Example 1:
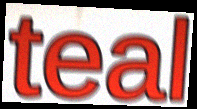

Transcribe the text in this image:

teal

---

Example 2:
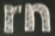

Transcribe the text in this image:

rn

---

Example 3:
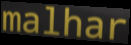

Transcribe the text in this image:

malhar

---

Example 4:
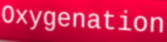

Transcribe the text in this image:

Oxygenation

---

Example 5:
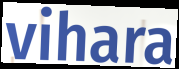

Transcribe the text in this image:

vihara